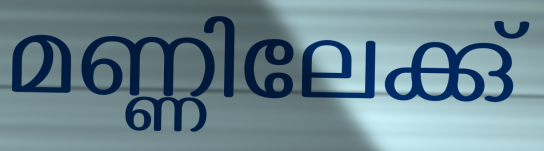
മണ്ണിലേക്കു്